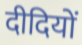
दीदियों